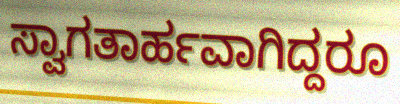
ಸ್ವಾಗತಾರ್ಹವಾಗಿದ್ದರೂ